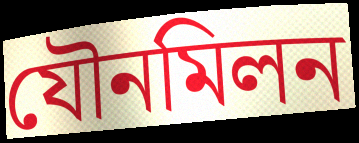
যৌনমিলন